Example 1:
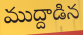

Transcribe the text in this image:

ముద్దాడిన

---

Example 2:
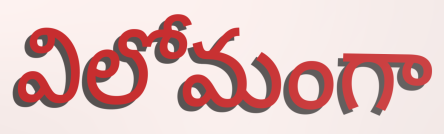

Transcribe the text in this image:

విలోమంగా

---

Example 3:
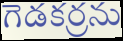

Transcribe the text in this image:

గెడకర్రను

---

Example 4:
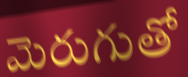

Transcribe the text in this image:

మెరుగుతో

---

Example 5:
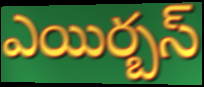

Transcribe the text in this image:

ఎయిర్బస్